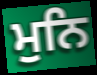
ਮੁਨਿ